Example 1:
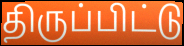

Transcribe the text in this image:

திருப்பிட்டு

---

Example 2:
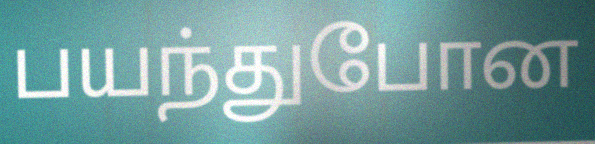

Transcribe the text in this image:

பயந்துபோன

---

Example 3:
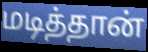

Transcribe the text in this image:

மடித்தான்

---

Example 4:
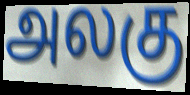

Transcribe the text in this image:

அலகு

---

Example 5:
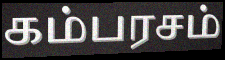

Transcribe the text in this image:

கம்பரசம்